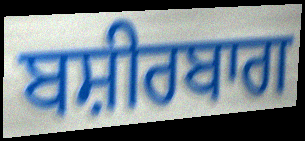
ਬਸ਼ੀਰਬਾਗ